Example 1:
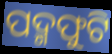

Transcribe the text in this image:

ପଦ୍ମଫୁଟି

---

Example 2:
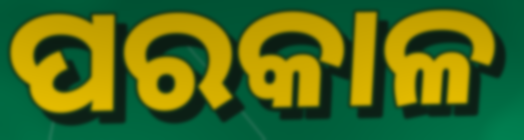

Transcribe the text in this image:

ପରକାଳ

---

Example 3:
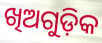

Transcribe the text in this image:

ଖିଅଗୁଡ଼ିକ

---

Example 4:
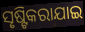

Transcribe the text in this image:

ସୃଷ୍ଟିକରାଯାଇ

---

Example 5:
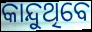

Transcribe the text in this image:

କାନ୍ଦୁଥିବେ